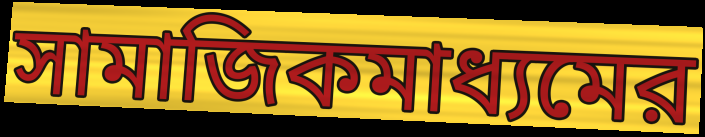
সামাজিকমাধ্যমের